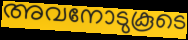
അവനോടുകൂടെ